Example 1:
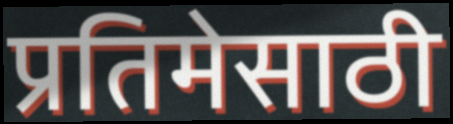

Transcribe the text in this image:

प्रतिमेसाठी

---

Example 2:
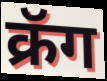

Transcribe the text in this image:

क्रॅग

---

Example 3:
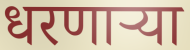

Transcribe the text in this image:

धरणाऱ्या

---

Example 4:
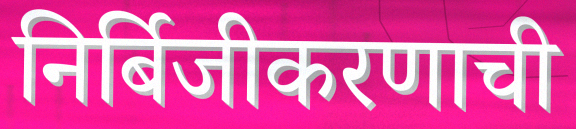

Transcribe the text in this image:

निर्बिजीकरणाची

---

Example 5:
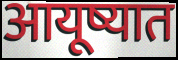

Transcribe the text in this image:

आयूष्यात